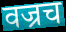
वज्रच